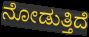
ನೋಡುತ್ತಿದೆ